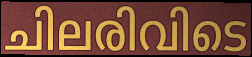
ചിലരിവിടെ